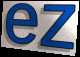
ez